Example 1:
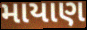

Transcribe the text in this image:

માયાણ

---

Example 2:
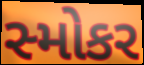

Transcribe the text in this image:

સ્મોકર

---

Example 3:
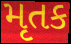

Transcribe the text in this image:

મૃતક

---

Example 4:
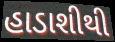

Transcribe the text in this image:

હાડાશીથી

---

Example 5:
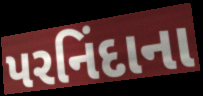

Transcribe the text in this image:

પરનિંદાના